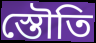
স্তৌতি